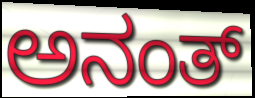
ಅನಂತ್